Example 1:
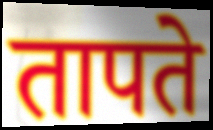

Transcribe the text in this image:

तापते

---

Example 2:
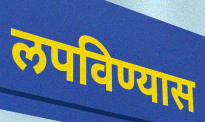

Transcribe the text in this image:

लपविण्यास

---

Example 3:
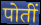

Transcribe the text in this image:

पोतीं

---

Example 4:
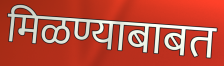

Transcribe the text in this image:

मिळण्याबाबत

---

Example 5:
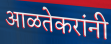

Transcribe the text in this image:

आळतेकरांनी